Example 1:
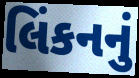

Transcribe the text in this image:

લિંકનનું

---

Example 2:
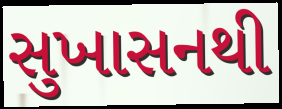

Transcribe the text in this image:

સુખાસનથી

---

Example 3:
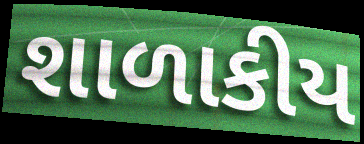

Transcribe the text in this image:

શાળાકીય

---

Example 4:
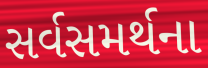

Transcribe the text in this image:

સર્વસમર્થના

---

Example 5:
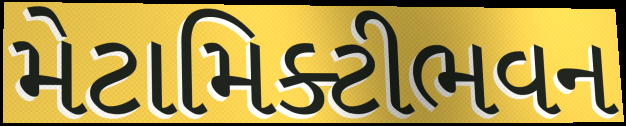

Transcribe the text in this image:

મેટામિક્ટીભવન